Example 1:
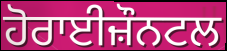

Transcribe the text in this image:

ਹੋਰਾਈਜ਼ੌਨਟਲ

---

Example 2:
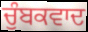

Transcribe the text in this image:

ਚੁੰਬਕਵਾਦ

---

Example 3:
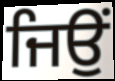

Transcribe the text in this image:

ਜਿਉਂ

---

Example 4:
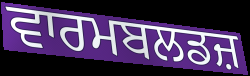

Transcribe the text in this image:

ਵਾਰਮਬਲਡਜ਼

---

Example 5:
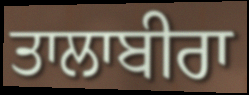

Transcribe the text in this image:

ਤਾਲਾਬੀਰਾ